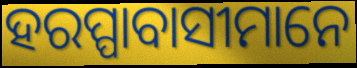
ହରପ୍ପାବାସୀମାନେ